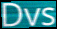
Dvs